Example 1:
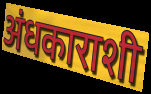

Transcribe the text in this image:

अंधकाराशी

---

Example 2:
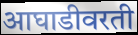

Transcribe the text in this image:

आघाडीवरती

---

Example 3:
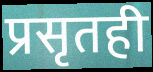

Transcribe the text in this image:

प्रसृतही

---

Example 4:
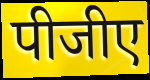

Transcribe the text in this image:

पीजीए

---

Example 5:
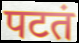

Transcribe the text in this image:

पटतं